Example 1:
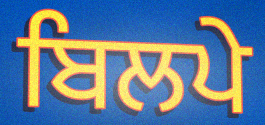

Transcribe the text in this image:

ਬਿਲਪੇ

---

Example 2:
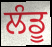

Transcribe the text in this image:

ਲੰਡੂ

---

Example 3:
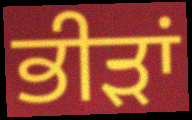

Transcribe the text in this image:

ਭੀੜਾਂ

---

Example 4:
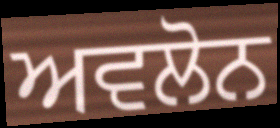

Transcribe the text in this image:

ਅਵਲੋਨ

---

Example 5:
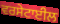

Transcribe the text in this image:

ਵਰਸੇਟਾਈਲ